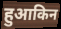
हुआकिन